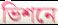
ভিশনে